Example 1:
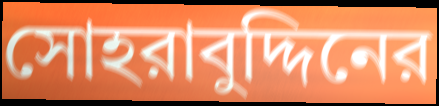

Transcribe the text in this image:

সোহরাবুদ্দিনের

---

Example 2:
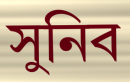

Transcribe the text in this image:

সুনিব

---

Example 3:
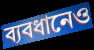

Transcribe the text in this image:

ব্যবধানেও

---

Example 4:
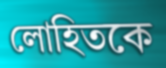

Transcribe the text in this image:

লোহিতকে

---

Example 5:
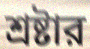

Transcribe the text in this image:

শ্রষ্টার